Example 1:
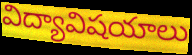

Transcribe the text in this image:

విద్యావిషయాలు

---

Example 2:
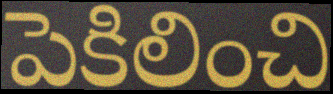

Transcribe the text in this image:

పెకిలించి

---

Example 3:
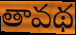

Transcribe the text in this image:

తావథ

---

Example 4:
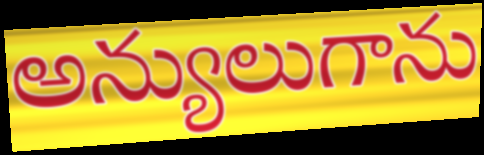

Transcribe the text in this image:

అన్యులుగాను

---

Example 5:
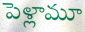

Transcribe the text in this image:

పెళ్లామూ